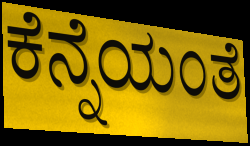
ಕೆನ್ನೆಯಂತೆ